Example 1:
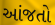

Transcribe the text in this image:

આંજતો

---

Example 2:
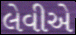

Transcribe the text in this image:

લેવીએ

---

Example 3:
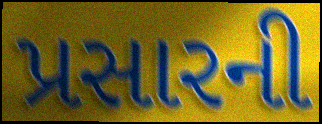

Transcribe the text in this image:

પ્રસારની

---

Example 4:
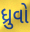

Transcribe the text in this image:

ધ્રુવો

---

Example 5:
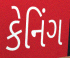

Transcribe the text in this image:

કેનિંગ